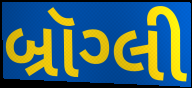
બ્રૉગ્લી